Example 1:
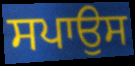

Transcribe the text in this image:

ਸਪਾਉਸ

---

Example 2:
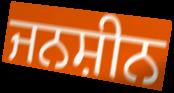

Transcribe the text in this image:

ਜਨਸ਼ੀਨ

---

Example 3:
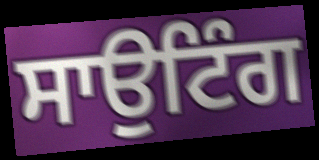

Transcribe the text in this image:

ਸਾਉਟਿੰਗ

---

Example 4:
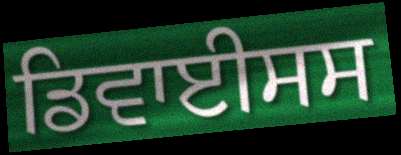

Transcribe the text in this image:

ਡਿਵਾਈਸਸ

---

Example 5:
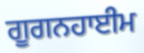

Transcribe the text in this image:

ਗੂਗਨਹਾਈਮ